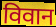
विवान